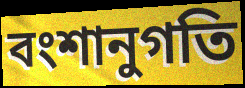
বংশানুগতি